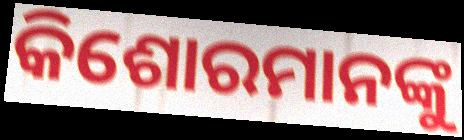
କିଶୋରମାନଙ୍କୁ